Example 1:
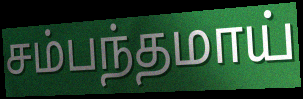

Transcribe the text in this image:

சம்பந்தமாய்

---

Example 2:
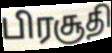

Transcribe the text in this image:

பிரசூதி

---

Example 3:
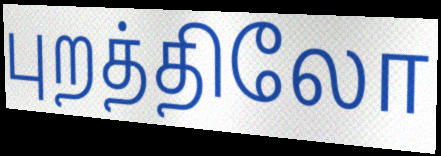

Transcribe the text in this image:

புறத்திலோ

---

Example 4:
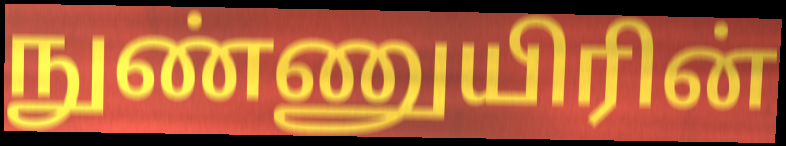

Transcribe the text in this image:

நுண்ணுயிரின்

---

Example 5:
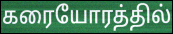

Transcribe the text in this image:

கரையோரத்தில்